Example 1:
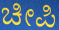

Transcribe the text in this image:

ಚೀಪಿ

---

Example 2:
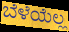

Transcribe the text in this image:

ಬೆಳೆಯೆಲ್ಲ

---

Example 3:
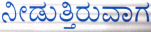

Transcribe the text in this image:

ನೀಡುತ್ತಿರುವಾಗ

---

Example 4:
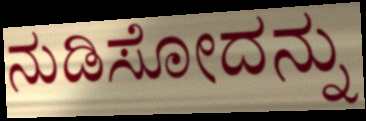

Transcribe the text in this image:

ನುಡಿಸೋದನ್ನು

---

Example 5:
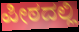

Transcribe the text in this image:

ಪೀಠದಲ್ಲಿ